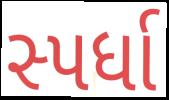
સ્પર્ધા